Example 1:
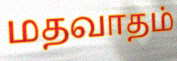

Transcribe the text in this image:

மதவாதம்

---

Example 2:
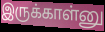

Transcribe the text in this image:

இருக்காள்னு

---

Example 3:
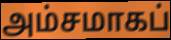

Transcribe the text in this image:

அம்சமாகப்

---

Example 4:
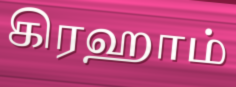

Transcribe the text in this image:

கிரஹாம்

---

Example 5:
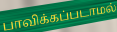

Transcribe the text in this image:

பாவிக்கப்படாமல்